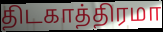
திடகாத்திரமா